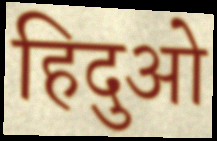
हिदुओ